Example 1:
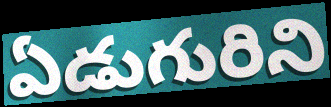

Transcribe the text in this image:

ఏడుగురిని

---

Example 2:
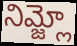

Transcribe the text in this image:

నిమ్జ్లో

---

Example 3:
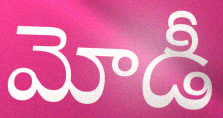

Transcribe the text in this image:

మోడీ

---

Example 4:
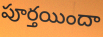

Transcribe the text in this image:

పూర్తయిందా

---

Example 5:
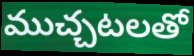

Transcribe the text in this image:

ముచ్చటలతో